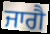
ਜਾਗੈ